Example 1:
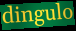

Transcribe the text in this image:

dingulo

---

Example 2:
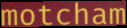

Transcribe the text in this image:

motcham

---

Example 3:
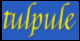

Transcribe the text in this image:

tulpule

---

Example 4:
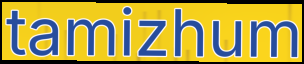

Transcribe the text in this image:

tamizhum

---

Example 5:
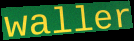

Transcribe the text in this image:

waller